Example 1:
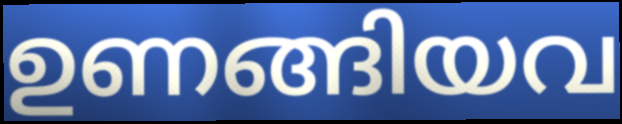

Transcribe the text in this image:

ഉണങ്ങിയവ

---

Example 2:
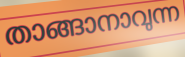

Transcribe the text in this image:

താങ്ങാനാവുന്ന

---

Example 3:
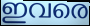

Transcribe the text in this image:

ഇവരെ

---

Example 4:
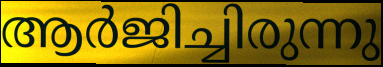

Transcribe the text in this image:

ആർജിച്ചിരുന്നു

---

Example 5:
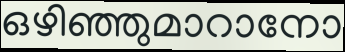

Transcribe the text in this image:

ഒഴിഞ്ഞുമാറാനോ